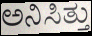
ಅನಿಸಿತ್ತು